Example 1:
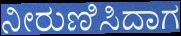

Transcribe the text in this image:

ನೀರುಣಿಸಿದಾಗ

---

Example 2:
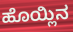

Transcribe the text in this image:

ಹೊಯ್ಲಿನ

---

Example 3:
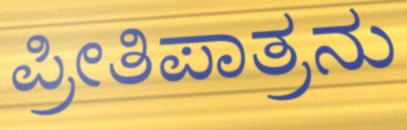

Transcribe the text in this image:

ಪ್ರೀತಿಪಾತ್ರನು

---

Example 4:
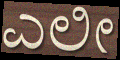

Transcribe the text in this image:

ಎಲೀ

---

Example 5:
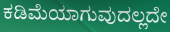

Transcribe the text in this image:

ಕಡಿಮೆಯಾಗುವುದಲ್ಲದೇ